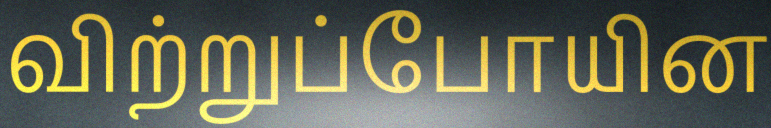
விற்றுப்போயின